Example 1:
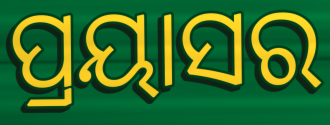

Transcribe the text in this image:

ପ୍ରୟାସର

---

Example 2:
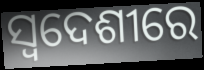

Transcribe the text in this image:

ସ୍ୱଦେଶୀରେ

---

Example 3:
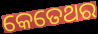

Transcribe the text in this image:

କେତେଥର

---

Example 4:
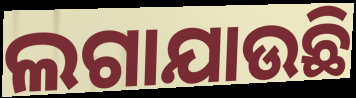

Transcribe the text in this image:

ଲଗାଯାଉଛି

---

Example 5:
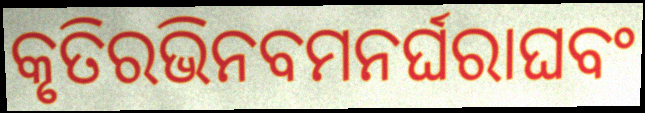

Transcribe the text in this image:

କୃତିରଭିନବମନର୍ଘରାଘବଂ